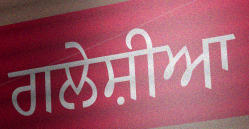
ਗਲੇਸ਼ੀਆ